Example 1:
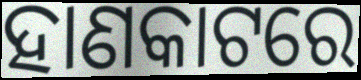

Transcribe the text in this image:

ହାଣକାଟରେ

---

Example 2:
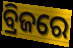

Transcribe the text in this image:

ବ୍ରିଜରେ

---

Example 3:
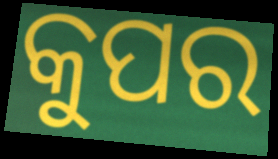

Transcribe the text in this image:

କୁପର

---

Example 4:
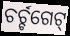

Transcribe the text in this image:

ଚର୍ଚ୍ଚଗେଟ୍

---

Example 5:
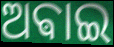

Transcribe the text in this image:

ଅଵାଇ